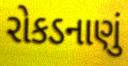
રોકડનાણું